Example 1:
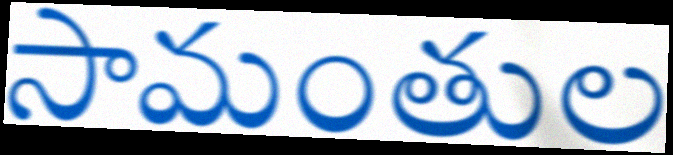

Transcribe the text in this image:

సామంతుల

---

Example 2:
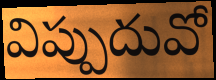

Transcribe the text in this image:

విప్పుదువో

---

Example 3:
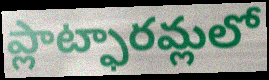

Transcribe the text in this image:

ప్లాట్ఫారమ్లలో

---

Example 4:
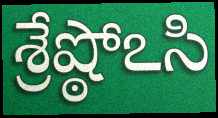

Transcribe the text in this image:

శ్రేష్ఠోఽసి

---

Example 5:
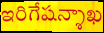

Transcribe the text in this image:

ఇరిగేషన్శాఖ